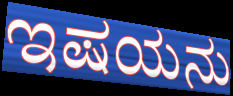
ಇಷಯನು